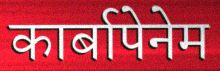
कार्बापेनेम